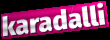
karadalli